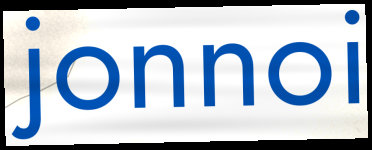
jonnoi